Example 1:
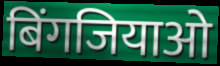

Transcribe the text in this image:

बिंगजियाओ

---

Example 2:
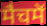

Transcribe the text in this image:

मैचमें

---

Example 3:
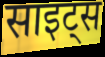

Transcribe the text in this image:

साइट्स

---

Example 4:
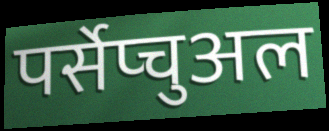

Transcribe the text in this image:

पर्सेप्चुअल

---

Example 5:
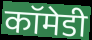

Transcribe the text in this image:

कॉमेडी